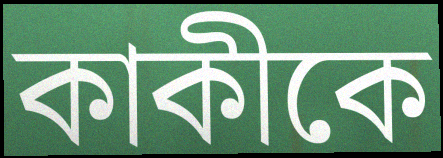
কাকীকে